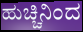
ಹುಚ್ಚಿನಿಂದ